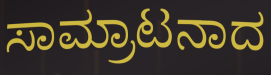
ಸಾಮ್ರಾಟನಾದ